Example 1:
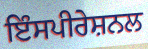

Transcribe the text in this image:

ਇੰਸਪੀਰੇਸ਼ਨਲ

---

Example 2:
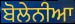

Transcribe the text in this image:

ਬੋਲੇਨੀਆ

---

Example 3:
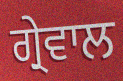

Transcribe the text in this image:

ਗ੍ਰੇਵਾਲ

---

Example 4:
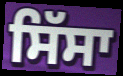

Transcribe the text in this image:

ਸਿੱਸਾ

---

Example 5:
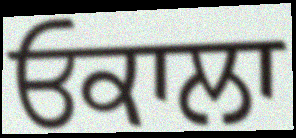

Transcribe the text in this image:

ਓਕਾਲਾ